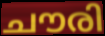
ചൗരി